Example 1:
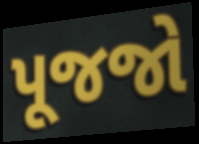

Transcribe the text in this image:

પૂજજો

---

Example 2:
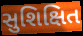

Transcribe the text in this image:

સુશિક્ષિત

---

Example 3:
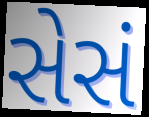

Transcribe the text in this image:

સેસં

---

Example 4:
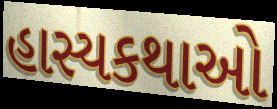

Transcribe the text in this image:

હાસ્યકથાઓ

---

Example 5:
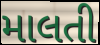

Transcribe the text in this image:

માલતી